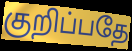
குறிப்பதே